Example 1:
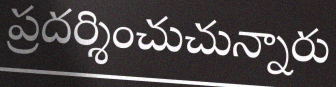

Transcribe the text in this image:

ప్రదర్శించుచున్నారు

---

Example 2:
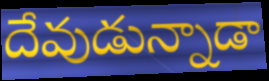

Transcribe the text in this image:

దేవుడున్నాడా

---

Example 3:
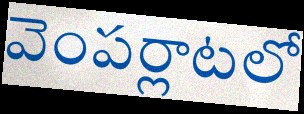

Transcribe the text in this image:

వెంపర్లాటలో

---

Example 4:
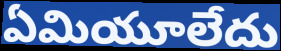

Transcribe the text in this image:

ఏమియూలేదు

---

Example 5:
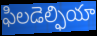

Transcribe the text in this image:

ఫిలడెల్ఫియా